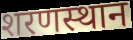
शरणस्थान